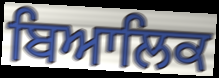
ਬਿਆਲਿਕ